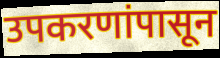
उपकरणांपासून